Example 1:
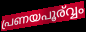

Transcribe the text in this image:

പ്രണയപൂര്വ്വം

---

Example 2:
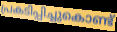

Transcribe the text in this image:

പ്രകടിപ്പിച്ചുകൊണ്ട്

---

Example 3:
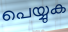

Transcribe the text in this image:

പെയ്യുക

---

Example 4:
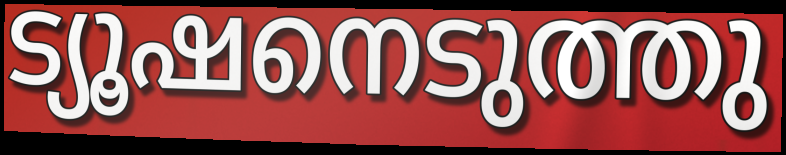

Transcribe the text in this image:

ട്യൂഷനെടുത്തു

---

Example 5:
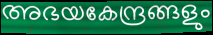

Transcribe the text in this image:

അഭയകേന്ദ്രങ്ങളും